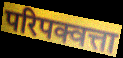
परिपक्वत्ता